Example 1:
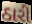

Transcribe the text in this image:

ઠારી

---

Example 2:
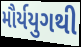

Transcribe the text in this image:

મૌર્યયુગથી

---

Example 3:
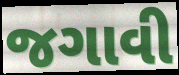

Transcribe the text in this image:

જગાવી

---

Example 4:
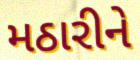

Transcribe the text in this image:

મઠારીને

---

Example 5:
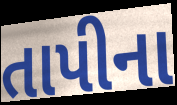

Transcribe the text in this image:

તાપીના